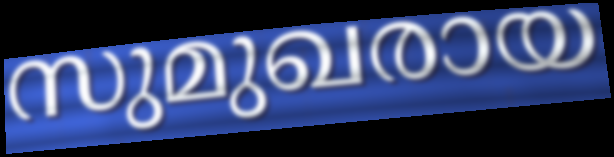
സുമുഖരായ